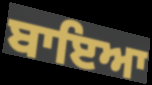
ਬਾਇਆ